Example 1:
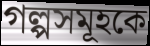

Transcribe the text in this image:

গল্পসমূহকে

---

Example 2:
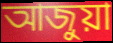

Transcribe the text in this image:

আজুয়া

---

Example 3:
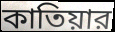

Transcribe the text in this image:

কাতিয়ার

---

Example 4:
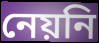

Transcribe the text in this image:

নেয়নি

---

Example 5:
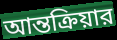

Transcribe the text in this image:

আন্তক্রিয়ার